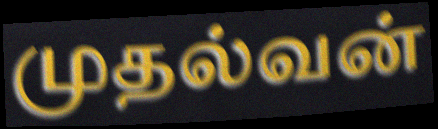
முதல்வன்